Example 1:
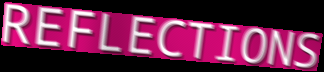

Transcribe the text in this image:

REFLECTIONS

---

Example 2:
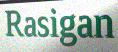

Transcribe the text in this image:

Rasigan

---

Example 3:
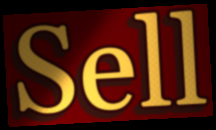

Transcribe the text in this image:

Sell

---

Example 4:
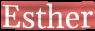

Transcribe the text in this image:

Esther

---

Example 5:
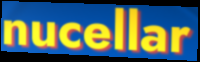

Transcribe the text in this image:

nucellar